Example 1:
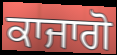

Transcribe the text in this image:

ਕਾਜਾਗੋ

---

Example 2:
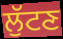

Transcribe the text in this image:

ਲੁੱਟਣ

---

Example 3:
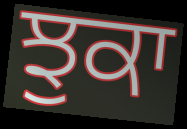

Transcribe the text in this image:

ਝੁਕਾ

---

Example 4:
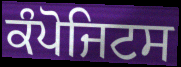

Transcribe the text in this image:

ਕੰਪੋਜਿਟਸ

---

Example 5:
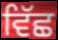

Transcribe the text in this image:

ਵਿੱਛ